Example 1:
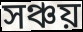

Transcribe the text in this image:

সঞ্চয়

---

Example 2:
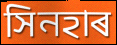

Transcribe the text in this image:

সিনহাৰ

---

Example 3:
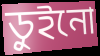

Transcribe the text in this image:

ডুইনো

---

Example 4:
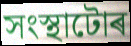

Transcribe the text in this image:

সংস্থাটোৰ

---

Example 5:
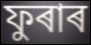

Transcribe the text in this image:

ফুৰাৰ